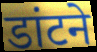
डांटने